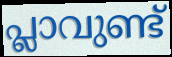
പ്ലാവുണ്ട്